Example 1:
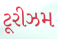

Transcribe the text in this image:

ટૂરીઝમ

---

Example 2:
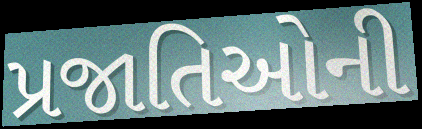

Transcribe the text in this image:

પ્રજાતિઓની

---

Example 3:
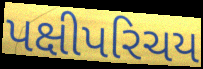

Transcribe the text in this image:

પક્ષીપરિચય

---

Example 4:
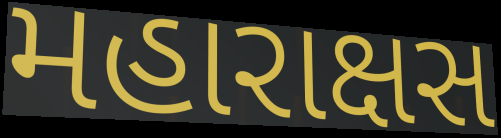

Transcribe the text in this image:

મહારાક્ષસ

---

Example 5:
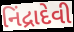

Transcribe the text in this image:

નિંદ્રાદેવી